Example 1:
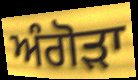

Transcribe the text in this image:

ਅੰਗੋੜਾ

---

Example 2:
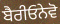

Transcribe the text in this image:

ਬੈਰੀਓਨੇਵੋ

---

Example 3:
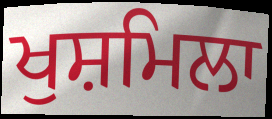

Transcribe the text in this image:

ਖੁਸ਼ਮਿਲਾ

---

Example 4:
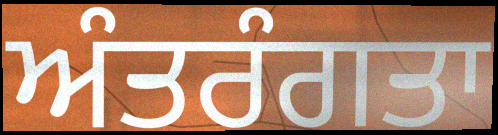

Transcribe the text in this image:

ਅੰਤਰੰਗਤਾ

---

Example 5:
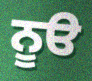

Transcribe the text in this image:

ਨੂੳ